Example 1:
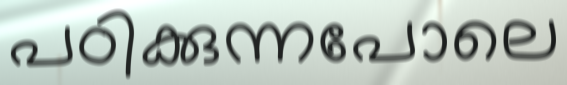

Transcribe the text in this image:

പഠിക്കുന്നപോലെ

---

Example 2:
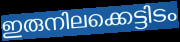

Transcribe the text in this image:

ഇരുനിലക്കെട്ടിടം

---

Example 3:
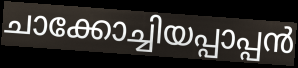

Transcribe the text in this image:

ചാക്കോച്ചിയപ്പാപ്പൻ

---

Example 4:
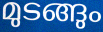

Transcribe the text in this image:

മുടങ്ങും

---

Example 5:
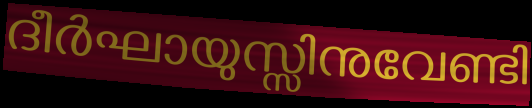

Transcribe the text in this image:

ദീർഘായുസ്സിനുവേണ്ടി